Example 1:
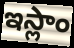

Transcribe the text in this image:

ఇస్లాం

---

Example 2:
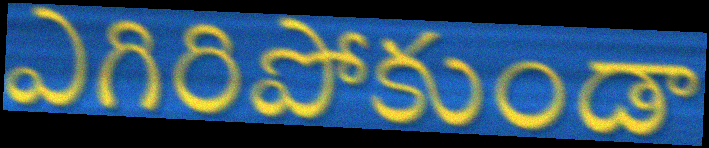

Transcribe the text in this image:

ఎగిరిపోకుండా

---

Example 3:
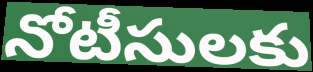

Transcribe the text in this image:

నోటీసులకు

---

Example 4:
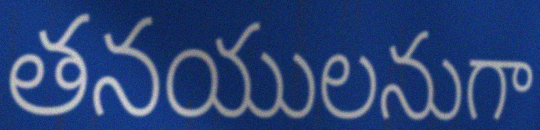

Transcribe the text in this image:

తనయులనుగా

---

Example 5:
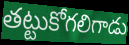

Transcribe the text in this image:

తట్టుకోగలిగాడు